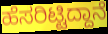
ಹೆಸರಿಟ್ಟಿದ್ದಾನೆ